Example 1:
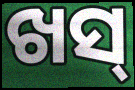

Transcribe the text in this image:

ଖସ୍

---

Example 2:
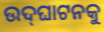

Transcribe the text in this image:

ଉଦ୍‌ଘାଟନକୁ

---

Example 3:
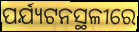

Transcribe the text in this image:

ପର୍ଯ୍ୟଟନସ୍ଥଳୀରେ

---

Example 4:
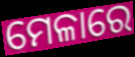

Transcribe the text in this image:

ମେଳାରେ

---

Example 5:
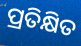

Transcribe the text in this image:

ପ୍ରତିକ୍ଷିତ